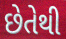
છેતેથી